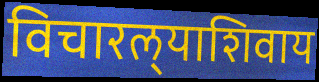
विचारल्याशिवाय